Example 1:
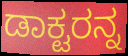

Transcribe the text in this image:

ಡಾಕ್ಟರನ್ನ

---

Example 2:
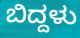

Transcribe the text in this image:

ಬಿದ್ದಳು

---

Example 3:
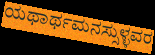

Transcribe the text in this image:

ಯಥಾರ್ಥಮನಸ್ಸುಳ್ಳವರ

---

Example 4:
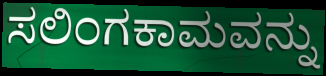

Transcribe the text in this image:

ಸಲಿಂಗಕಾಮವನ್ನು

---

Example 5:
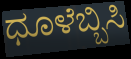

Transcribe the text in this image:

ಧೂಳೆಬ್ಬಿಸಿ